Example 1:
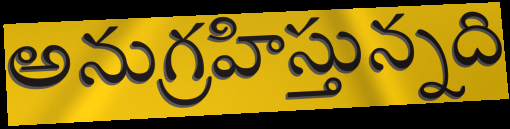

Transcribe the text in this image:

అనుగ్రహిస్తున్నది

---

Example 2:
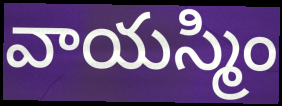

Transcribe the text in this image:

వాయస్మిం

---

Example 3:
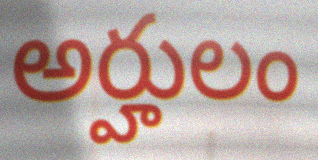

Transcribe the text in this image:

అర్హులం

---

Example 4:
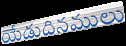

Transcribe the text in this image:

యేడుదినములు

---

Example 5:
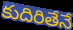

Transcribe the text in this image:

కుదిరితేనే